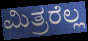
ಮಿತ್ರರೆಲ್ಲ